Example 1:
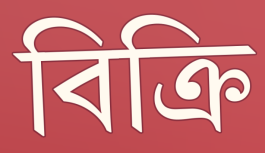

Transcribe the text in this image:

বিক্ৰি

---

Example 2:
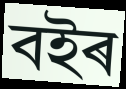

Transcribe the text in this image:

বইৰ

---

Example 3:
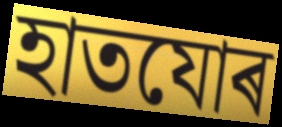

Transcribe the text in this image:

হাতযোৰ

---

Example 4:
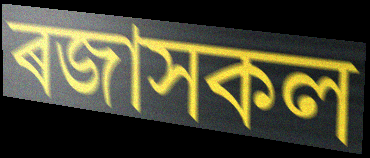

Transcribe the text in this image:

ৰজাসকল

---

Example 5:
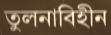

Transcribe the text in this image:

তুলনাবিহীন